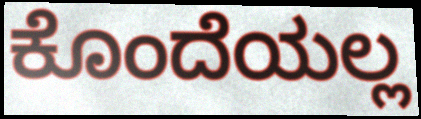
ಕೊಂದೆಯಲ್ಲ